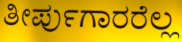
ತೀರ್ಪುಗಾರರೆಲ್ಲ